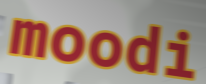
moodi